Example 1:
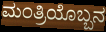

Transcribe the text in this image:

ಮಂತ್ರಿಯೊಬ್ಬನ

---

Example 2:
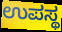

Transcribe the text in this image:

ಉಪಸ್ಥ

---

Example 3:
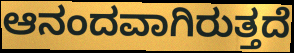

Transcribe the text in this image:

ಆನಂದವಾಗಿರುತ್ತದೆ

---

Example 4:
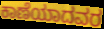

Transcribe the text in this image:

ಕಾಣೆಯಾದವರ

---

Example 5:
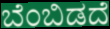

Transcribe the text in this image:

ಬೆಂಬಿಡದೆ